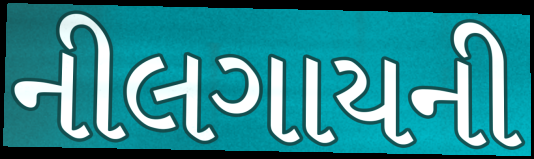
નીલગાયની